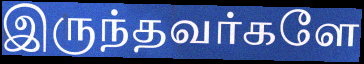
இருந்தவர்களே